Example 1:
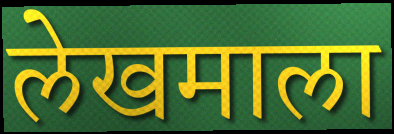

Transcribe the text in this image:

लेखमाला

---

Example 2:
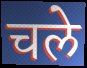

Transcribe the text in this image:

चले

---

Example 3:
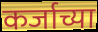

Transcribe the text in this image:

कर्जाच्या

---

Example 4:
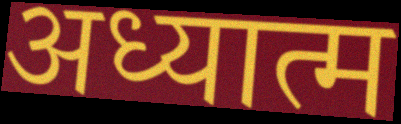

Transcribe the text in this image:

अध्यात्म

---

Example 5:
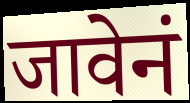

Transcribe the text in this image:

जावेनं